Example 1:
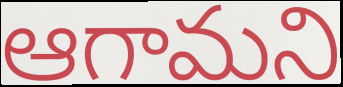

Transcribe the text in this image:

ఆగామని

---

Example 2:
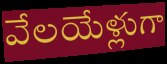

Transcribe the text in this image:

వేలయేళ్లుగా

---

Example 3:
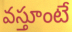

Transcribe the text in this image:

వస్తూంటే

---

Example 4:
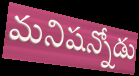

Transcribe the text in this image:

మనిషన్నోడు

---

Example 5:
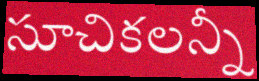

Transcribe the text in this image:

సూచికలన్నీ